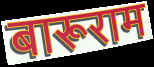
बारूराम